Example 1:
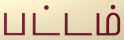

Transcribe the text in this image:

பட்டம்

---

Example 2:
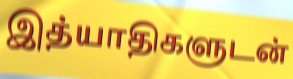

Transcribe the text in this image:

இத்யாதிகளுடன்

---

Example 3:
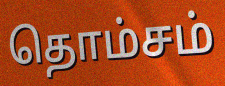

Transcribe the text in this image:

தொம்சம்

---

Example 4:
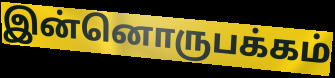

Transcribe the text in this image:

இன்னொருபக்கம்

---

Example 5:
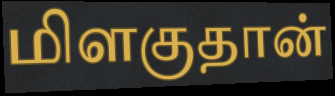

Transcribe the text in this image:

மிளகுதான்